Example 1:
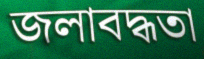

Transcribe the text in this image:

জলাবদ্ধতা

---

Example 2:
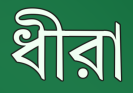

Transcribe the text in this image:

ধীরা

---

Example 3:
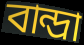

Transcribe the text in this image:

বান্দ্রা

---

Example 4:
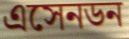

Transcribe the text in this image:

এসেনডন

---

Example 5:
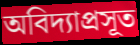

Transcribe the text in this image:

অবিদ্যাপ্রসূত